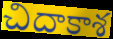
చిదాకాశ